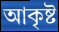
আকৃষ্ট